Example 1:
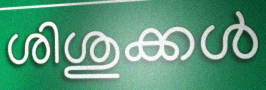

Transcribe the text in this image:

ശിശുക്കൾ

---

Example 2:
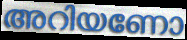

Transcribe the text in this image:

അറിയണോ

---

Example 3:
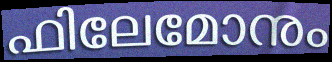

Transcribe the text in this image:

ഫിലേമോനും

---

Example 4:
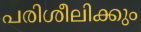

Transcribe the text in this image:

പരിശീലിക്കും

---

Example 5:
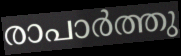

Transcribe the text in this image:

രാപാർത്തു